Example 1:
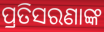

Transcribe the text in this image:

ପ୍ରତିସରଣାଙ୍କ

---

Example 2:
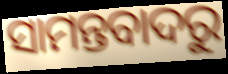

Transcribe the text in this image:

ସାମନ୍ତବାଦରୁ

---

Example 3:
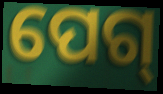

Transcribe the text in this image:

ପେଗ୍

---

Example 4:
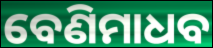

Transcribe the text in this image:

ବେଣିମାଧବ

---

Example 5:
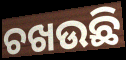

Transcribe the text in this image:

ଚଖଉଛି